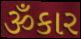
ૐકાર